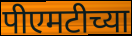
पीएमटीच्या